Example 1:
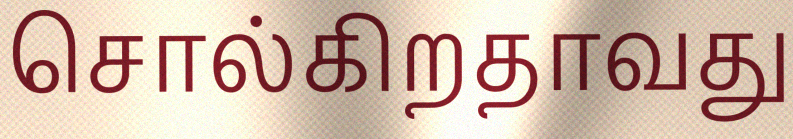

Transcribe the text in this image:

சொல்கிறதாவது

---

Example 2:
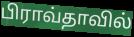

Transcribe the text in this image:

பிராவ்தாவில்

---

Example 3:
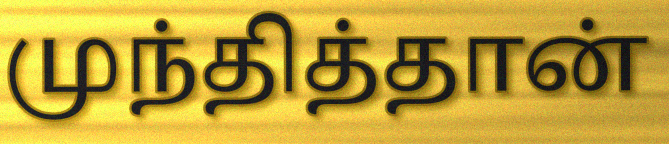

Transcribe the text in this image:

முந்தித்தான்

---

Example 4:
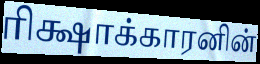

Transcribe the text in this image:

ரிக்ஷாக்காரனின்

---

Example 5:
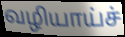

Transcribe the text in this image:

வழியாய்ச்